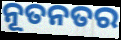
ନୂତନତର